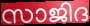
സാജിദ